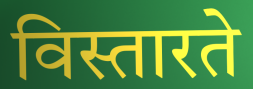
विस्तारते